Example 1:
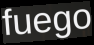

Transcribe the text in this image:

fuego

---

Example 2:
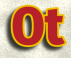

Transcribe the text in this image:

Ot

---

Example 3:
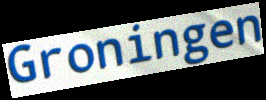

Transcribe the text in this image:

Groningen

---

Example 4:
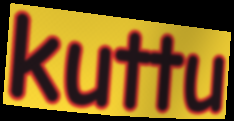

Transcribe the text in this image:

kuttu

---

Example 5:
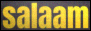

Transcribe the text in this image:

salaam